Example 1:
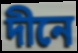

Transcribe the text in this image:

দীনে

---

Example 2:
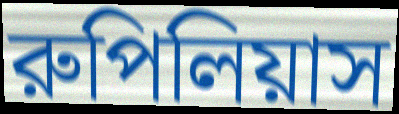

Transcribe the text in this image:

রুপিলিয়াস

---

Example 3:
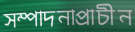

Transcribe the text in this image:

সম্পাদনাপ্রাচীন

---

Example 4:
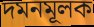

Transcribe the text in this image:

দমনমূলক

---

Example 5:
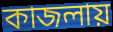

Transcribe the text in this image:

কাজলায়